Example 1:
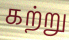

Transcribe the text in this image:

கற்று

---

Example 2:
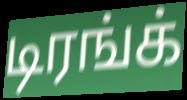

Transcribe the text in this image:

டிரங்க்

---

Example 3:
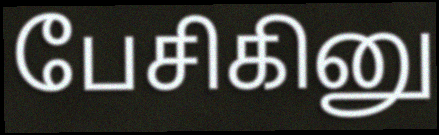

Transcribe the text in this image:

பேசிகினு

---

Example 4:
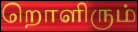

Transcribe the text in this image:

றொளிரும்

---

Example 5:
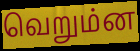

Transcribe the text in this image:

வெறும்ன